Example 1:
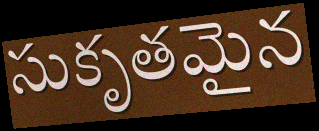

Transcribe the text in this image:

సుకృతమైన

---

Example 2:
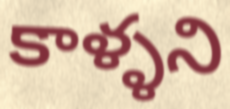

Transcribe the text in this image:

కాళ్ళని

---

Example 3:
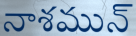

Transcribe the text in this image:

నాశమున్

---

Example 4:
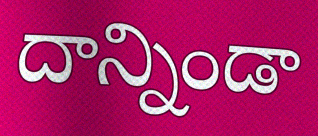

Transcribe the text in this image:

దాన్నిండా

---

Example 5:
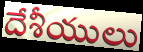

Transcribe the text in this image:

దేశీయులు